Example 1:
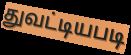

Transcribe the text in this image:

துவட்டியபடி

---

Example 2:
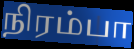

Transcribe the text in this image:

நிரம்பா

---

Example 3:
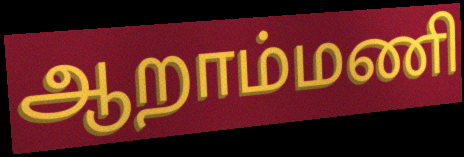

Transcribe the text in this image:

ஆறாம்மணி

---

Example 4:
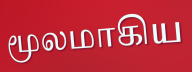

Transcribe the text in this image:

மூலமாகிய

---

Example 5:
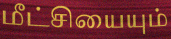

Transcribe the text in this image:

மீட்சியையும்